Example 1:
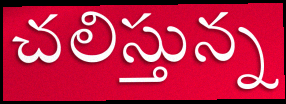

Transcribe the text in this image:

చలిస్తున్న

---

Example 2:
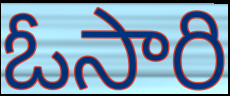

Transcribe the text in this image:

ఓసారి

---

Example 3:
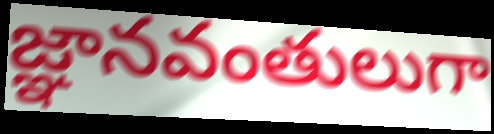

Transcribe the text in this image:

జ్ఞానవంతులుగా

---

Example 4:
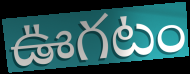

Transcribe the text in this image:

ఊగటం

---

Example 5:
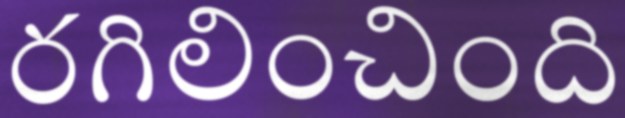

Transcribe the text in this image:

రగిలించింది